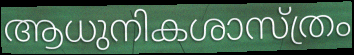
ആധുനികശാസ്ത്രം